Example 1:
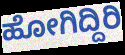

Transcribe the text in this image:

ಹೋಗಿದ್ದಿರಿ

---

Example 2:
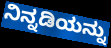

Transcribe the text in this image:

ನಿನ್ನಡಿಯನ್ನು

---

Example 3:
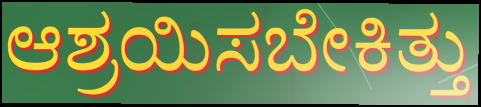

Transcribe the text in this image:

ಆಶ್ರಯಿಸಬೇಕಿತ್ತು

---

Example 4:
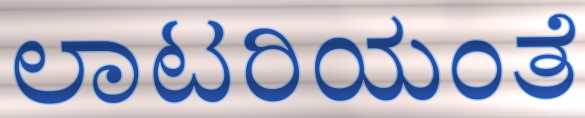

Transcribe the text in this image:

ಲಾಟರಿಯಂತೆ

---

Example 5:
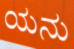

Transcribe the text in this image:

ಯನು